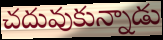
చదువుకున్నాడు